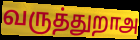
வருத்துறாஅ